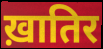
ख़ातिर